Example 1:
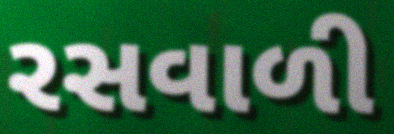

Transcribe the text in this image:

રસવાળી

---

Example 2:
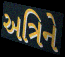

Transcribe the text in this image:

અત્રિને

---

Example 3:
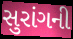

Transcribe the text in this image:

સુરાંગની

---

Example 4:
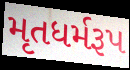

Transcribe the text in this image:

મૃતધર્મરૂપ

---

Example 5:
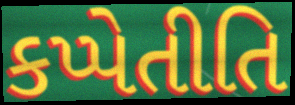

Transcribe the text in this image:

કપ્પેતીતિ